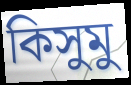
কিসুমু